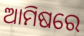
ଆମିଷରେ